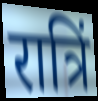
रात्रिं